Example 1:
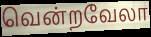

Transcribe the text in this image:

வென்றவேலா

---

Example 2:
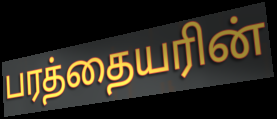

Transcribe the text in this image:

பரத்தையரின்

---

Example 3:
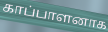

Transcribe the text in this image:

காப்பாளனாக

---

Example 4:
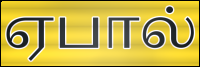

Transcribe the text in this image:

ஏபால்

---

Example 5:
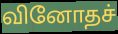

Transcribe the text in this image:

வினோதச்